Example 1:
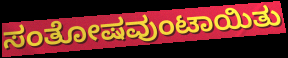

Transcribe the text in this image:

ಸಂತೋಷವುಂಟಾಯಿತು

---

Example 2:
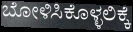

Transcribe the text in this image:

ಬೋಳಿಸಿಕೊಳ್ಳಲಿಕ್ಕೆ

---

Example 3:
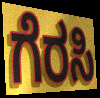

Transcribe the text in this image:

ಗೆರಸಿ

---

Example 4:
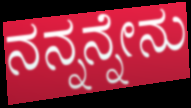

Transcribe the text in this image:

ನನ್ನನ್ನೇನು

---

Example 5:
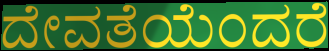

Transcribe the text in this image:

ದೇವತೆಯೆಂದರೆ